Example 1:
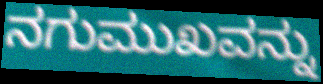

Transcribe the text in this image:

ನಗುಮುಖವನ್ನು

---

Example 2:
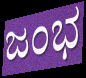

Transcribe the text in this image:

ಜಂಭ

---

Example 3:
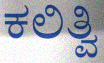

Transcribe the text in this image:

ಕಲಿತ್ವಿ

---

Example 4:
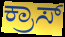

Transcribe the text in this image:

ಕ್ರಾಸ್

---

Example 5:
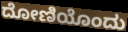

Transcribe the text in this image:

ದೋಣಿಯೊಂದು